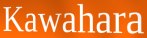
Kawahara